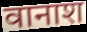
वानाश